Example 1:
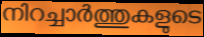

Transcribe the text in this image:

നിറച്ചാർത്തുകളുടെ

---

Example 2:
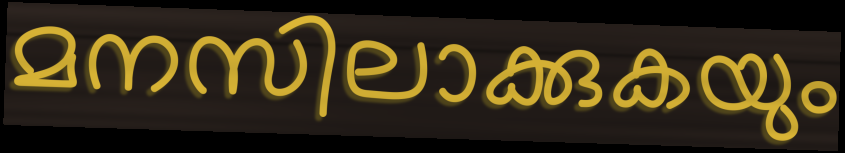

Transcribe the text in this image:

മനസിലാക്കുകയും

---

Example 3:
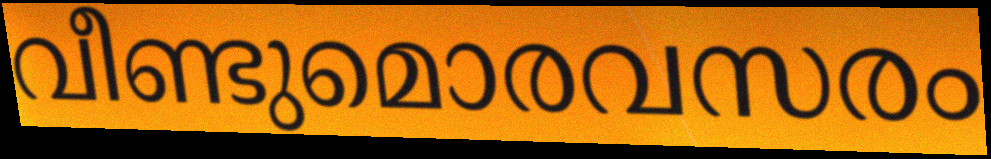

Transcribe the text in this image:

വീണ്ടുമൊരവസരം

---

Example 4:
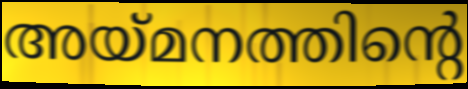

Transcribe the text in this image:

അയ്മനത്തിന്റെ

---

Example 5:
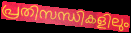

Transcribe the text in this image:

പ്രതിസന്ധികളിലും